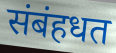
संबंहधत